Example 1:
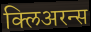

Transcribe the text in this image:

क्लिअरन्स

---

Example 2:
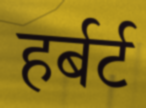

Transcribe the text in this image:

हर्बर्ट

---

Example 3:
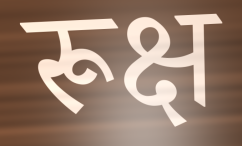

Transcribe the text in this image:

रूक्ष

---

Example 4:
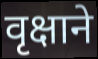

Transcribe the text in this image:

वृक्षाने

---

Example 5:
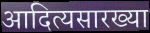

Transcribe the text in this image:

आदित्यसारख्या